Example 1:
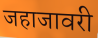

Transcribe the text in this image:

जहाजावरी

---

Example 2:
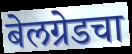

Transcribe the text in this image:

बेलग्रेडचा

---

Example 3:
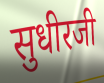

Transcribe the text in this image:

सुधीरजी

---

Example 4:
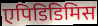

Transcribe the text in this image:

एपिडिडिमिस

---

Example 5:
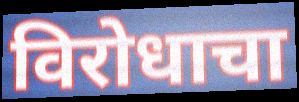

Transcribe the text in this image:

विरोधाचा